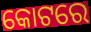
କୋଟରେ